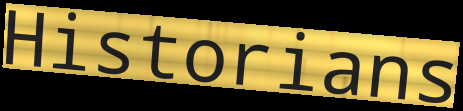
Historians